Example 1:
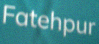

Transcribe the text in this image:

Fatehpur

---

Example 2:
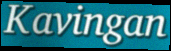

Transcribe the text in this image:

Kavingan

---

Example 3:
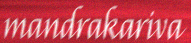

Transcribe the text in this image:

mandrakariva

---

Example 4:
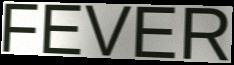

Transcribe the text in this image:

FEVER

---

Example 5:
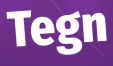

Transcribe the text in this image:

Tegn